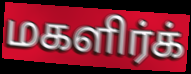
மகளிர்க்